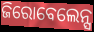
ଜିରୋବେଲେନ୍ସ